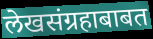
लेखसंग्रहाबाबत